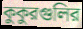
কুকুরগুলির